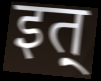
इत्